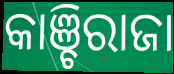
କାଞ୍ଚିରାଜା